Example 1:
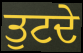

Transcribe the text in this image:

ਤੁਟਦੇ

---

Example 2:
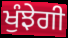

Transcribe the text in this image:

ਖੁੰਝੇਗੀ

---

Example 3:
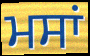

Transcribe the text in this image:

ਮਸਾਂ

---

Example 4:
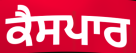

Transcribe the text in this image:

ਕੈਸਪਾਰ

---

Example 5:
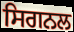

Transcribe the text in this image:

ਸਿਗਨਲ